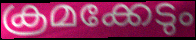
ക്രമക്കേടും